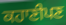
ਕਹਾਣੀਪਣ